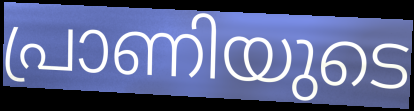
പ്രാണിയുടെ